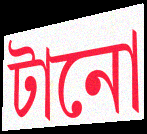
টানো